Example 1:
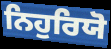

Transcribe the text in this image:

ਨਿਹੁਰਿਯੋ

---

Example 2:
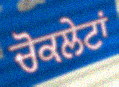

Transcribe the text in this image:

ਚੋਕਲੇਟਾਂ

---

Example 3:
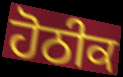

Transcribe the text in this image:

ਹੋਠੀਕ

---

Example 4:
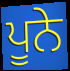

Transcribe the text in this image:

ਪੂਨੇ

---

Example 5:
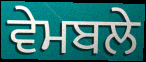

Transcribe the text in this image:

ਵੇਮਬਲੇ